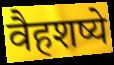
वैहशष्ये